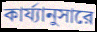
কার্য্যানুসারে